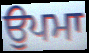
ਉਪਮਾ